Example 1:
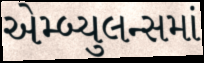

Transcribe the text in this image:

એમ્બ્યુલન્સમાં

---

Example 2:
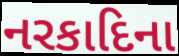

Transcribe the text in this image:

નરકાદિના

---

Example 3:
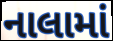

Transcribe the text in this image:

નાલામાં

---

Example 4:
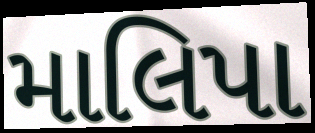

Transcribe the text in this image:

માલિપા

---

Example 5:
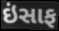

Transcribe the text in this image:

ઇંસાફ